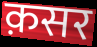
क़सर